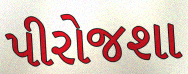
પીરોજશા